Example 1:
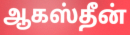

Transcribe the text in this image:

ஆகஸ்தீன்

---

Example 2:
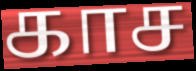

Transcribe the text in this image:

காச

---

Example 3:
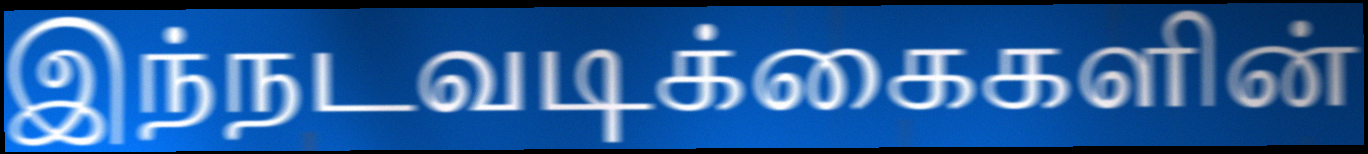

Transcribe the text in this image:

இந்நடவடிக்கைகளின்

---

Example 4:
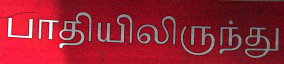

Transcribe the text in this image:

பாதியிலிருந்து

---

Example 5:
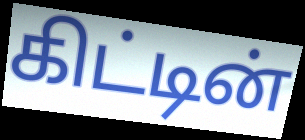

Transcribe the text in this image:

கிட்டின்